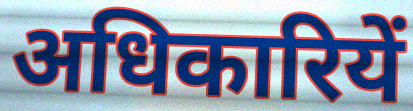
अधिकारियें